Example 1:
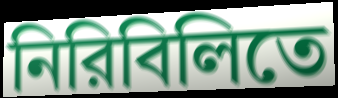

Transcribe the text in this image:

নিরিবিলিতে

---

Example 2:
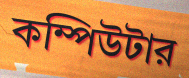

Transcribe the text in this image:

কম্পিউটার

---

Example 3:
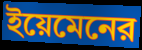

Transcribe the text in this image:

ইয়েমেনের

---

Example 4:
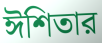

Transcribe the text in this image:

ঈশিতার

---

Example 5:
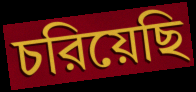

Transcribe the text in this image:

চরিয়েছি